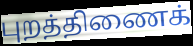
புறத்திணைக்